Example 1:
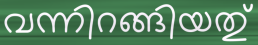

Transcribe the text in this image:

വന്നിറങ്ങിയതു്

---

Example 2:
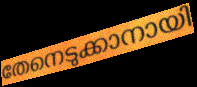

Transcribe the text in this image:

തേനെടുക്കാനായി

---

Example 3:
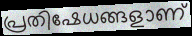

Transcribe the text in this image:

പ്രതിഷേധങ്ങളാണ്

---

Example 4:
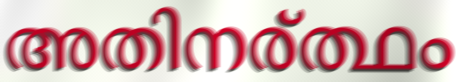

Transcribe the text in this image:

അതിനര്ത്ഥം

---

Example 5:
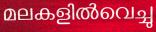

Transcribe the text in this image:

മലകളിൽവെച്ചു